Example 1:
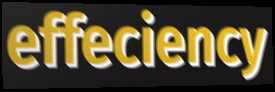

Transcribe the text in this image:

effeciency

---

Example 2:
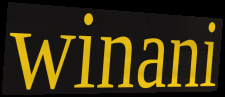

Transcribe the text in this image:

winani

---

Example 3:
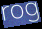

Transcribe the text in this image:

rog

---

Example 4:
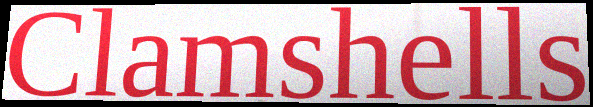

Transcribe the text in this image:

Clamshells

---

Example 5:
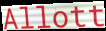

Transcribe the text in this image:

Allott